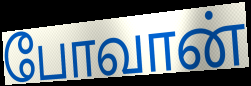
போவான்